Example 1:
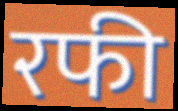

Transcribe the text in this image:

रफी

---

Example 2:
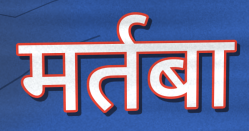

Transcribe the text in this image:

मर्तबा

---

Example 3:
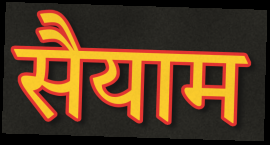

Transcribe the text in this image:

सैयाम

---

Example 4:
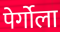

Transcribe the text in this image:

पेर्गोला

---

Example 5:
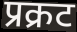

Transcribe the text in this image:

प्रक्रट